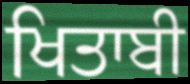
ਖਿਤਾਬੀ